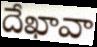
దేఖావా